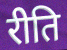
रीति